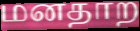
மனதாற